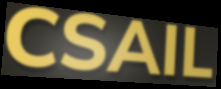
CSAIL